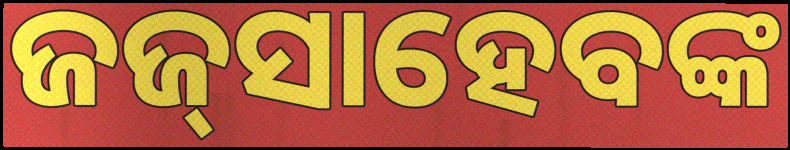
ଜଜ୍‌ସାହେବଙ୍କ